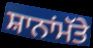
ਸ਼ਾਨਾਂਮੱਤੇ